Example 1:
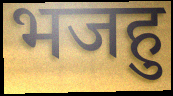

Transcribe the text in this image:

भजहु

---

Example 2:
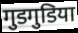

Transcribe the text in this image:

गुडगुडिया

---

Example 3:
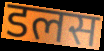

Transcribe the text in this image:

डलस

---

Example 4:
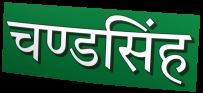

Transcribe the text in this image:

चण्डसिंह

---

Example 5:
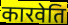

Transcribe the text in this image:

कारवेति